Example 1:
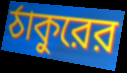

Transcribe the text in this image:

ঠাকুরের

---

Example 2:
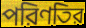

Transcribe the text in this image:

পরিণতির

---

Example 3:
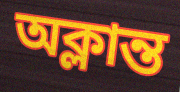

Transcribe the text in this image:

অক্লান্ত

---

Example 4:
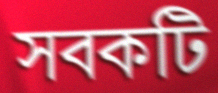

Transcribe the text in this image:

সবকটি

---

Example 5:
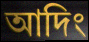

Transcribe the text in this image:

আদিং